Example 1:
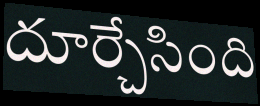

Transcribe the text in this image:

దూర్చేసింది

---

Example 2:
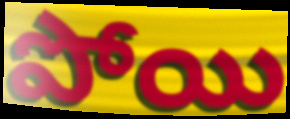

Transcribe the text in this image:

పోయి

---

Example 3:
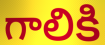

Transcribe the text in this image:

గాలికి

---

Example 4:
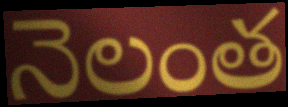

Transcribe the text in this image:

నెలంత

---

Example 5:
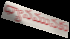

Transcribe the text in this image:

ధ్యానమునకు